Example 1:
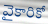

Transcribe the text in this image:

వైకారికో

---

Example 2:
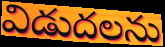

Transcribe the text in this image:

విడుదలను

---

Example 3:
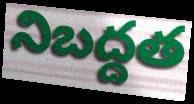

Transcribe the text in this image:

నిబద్దత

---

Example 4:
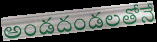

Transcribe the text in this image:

అండదండలతోనే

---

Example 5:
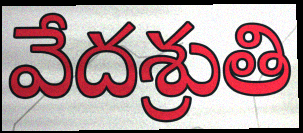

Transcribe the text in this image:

వేదశ్రుతి